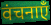
वंचनाएँ